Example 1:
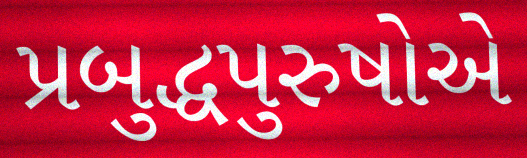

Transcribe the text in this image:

પ્રબુદ્ધપુરુષોએ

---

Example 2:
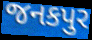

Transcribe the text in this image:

જનકપુર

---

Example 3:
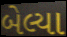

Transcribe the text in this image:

બેલ્યા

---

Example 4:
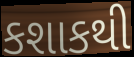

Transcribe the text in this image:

કશાકથી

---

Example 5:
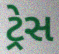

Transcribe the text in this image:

ટ્રેસ